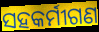
ସହକର୍ମୀଗଣ